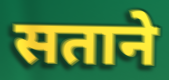
सताने